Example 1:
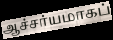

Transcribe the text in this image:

ஆச்சர்யமாகப்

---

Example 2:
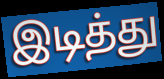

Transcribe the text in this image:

இடித்து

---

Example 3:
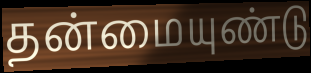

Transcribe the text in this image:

தன்மையுண்டு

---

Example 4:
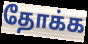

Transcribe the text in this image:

தோக்க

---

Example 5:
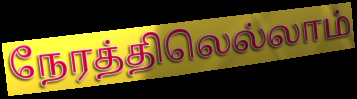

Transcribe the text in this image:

நேரத்திலெல்லாம்